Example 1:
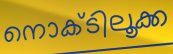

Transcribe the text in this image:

നൊക്ടിലൂക്ക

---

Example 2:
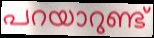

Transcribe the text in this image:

പറയാറുണ്ട്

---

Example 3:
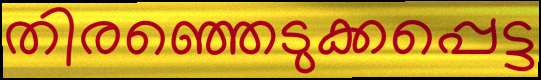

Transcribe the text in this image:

തിരഞ്ഞെടുക്കപ്പെട്ട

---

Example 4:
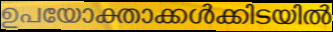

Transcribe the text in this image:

ഉപയോക്താക്കൾക്കിടയിൽ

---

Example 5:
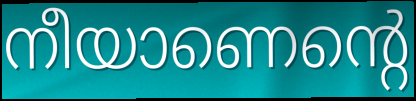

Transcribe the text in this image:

നീയാണെന്റെ